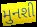
મુનશી